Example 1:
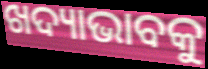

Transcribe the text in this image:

ଖଦ୍ୟାଭାବକୁ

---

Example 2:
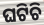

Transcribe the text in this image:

ଘଟିଚି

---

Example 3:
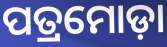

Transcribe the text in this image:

ପତ୍ରମୋଡ଼ା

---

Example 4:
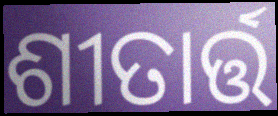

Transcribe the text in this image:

ଶୀତାର୍ତ୍ତ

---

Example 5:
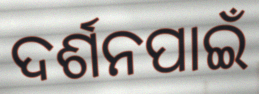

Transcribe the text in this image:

ଦର୍ଶନପାଇଁ